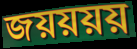
জয়য়য়য়